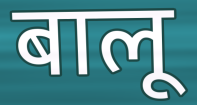
बालू